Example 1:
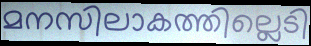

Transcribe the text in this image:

മനസിലാകത്തില്ലെടി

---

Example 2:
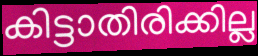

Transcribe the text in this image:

കിട്ടാതിരിക്കില്ല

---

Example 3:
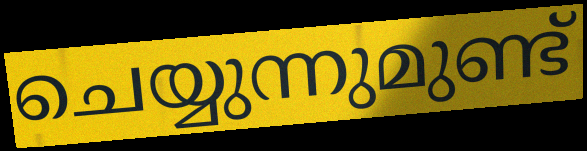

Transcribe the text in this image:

ചെയ്യുന്നുമുണ്ട്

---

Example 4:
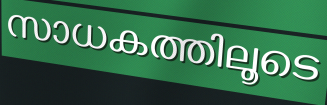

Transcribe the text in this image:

സാധകത്തിലൂടെ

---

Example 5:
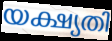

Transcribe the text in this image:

യക്ഷ്യതി